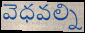
వెధవల్ని